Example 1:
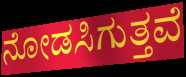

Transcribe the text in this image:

ನೋಡಸಿಗುತ್ತವೆ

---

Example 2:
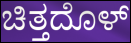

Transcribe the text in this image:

ಚಿತ್ತದೊಳ್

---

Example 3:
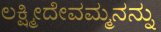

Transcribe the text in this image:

ಲಕ್ಷ್ಮೀದೇವಮ್ಮನನ್ನು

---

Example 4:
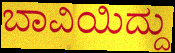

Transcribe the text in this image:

ಬಾವಿಯಿದ್ದು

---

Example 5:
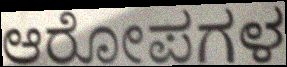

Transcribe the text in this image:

ಆರೋಪಗಳ